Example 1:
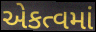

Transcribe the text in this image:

એકત્વમાં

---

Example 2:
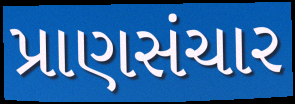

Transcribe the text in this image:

પ્રાણસંચાર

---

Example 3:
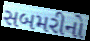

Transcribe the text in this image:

સબમરીનો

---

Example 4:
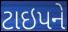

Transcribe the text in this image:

ટાઇપને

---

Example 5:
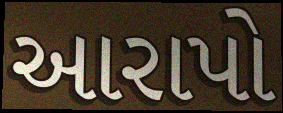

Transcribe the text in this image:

આરાપો